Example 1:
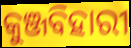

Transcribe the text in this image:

କୁଞ୍ଜବିହାରୀ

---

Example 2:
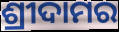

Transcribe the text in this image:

ଶ୍ରୀଦାମର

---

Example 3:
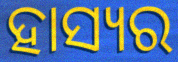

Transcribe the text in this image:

ହାସ୍ୟର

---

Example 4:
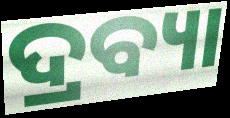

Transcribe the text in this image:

ଦ୍ରବ୍ୟା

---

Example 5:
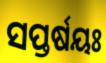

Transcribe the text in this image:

ସପ୍ତର୍ଷୟଃ